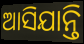
ଆସିଯାନ୍ତି